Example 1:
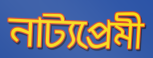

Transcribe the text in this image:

নাট্যপ্ৰেমী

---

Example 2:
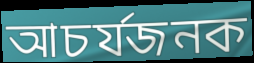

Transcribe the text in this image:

আচৰ্যজনক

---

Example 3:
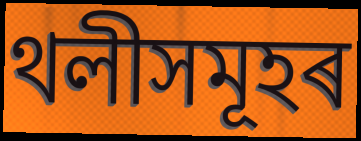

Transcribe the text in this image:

থলীসমূহৰ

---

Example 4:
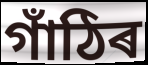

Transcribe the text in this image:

গাঁঠিৰ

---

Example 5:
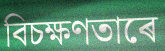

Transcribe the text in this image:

বিচক্ষণতাৰে